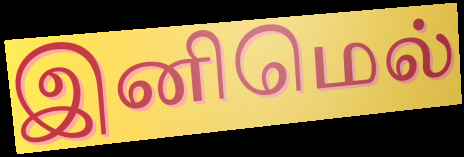
இனிமெல்